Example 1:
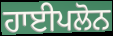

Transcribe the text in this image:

ਹਾਈਪਲੋਨ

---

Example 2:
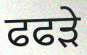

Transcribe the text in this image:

ਫਫੜੇ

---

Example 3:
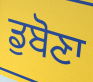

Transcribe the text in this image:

ਡੁਬੋਣਾ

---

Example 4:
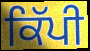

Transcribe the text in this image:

ਕਿੱਪੀ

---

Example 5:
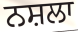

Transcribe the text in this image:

ਨਸ਼ਲਾ